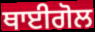
ਥਾਈਗੋਲ